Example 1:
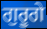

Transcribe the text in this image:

ਗੁਰੂਗੇ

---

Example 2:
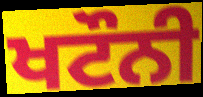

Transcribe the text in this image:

ਖਟੌਨੀ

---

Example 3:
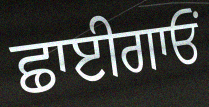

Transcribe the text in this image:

ਛਾਈਗਾਓਂ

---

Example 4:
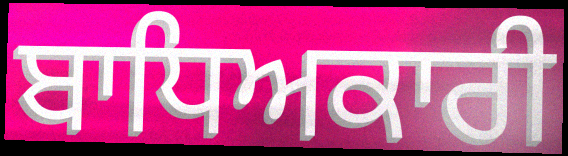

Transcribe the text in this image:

ਬਾਧਿਅਕਾਰੀ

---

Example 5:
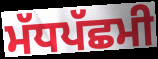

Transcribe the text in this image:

ਮੱਧਪੱਛਮੀ